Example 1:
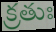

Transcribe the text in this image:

క్రతుః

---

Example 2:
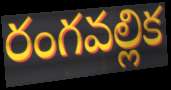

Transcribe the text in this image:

రంగవల్లిక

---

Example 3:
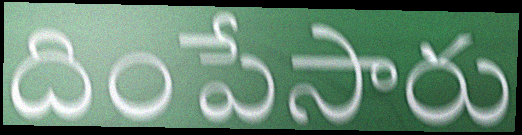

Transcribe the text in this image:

దింపేసారు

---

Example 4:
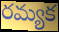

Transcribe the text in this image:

రమ్యక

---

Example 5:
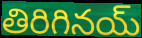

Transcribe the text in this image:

తిరిగినయ్